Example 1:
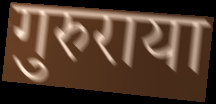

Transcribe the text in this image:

गुरुराया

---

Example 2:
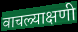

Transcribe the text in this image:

वाचल्याक्षणी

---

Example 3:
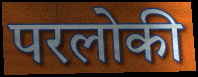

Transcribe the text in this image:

परलोकी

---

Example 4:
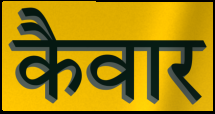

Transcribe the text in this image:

कैवार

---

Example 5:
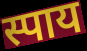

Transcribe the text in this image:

स्पाय